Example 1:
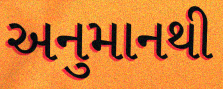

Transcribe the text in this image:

અનુમાનથી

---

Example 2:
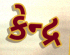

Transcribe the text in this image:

કેન્દ્ર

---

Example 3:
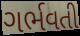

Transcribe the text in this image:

ગર્ભવતી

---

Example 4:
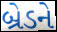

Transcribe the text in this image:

બ્રેડને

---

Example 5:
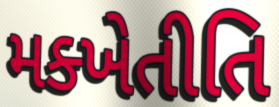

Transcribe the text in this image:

મક્ખેતીતિ